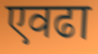
एवढा